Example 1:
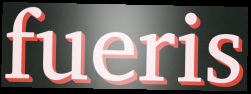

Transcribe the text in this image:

fueris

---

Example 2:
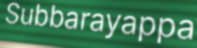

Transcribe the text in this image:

Subbarayappa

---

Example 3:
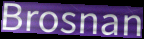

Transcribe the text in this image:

Brosnan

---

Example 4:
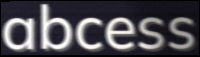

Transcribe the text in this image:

abcess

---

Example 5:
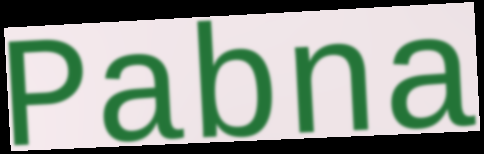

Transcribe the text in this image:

Pabna